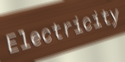
Electricity